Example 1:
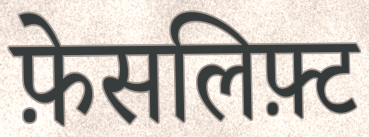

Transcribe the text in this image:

फ़ेसलिफ़्ट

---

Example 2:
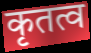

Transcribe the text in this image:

कृतत्व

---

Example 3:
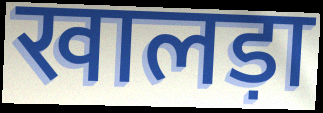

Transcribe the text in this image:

खालड़ा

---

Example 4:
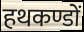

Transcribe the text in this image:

हथकण्डों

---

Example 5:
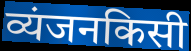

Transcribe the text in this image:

व्यंजनकिसी